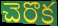
చెరొక